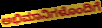
ಅಭಿಮಾನಿಗಳೊಂದಿಗೆ